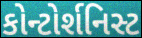
કોન્ટોર્શનિસ્ટ